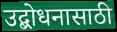
उद्बोधनासाठी